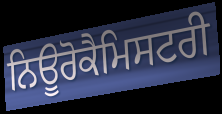
ਨਿਊਰੋਕੈਮਿਸਟਰੀ